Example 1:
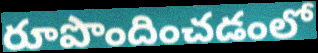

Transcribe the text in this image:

రూపొందించడంలో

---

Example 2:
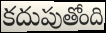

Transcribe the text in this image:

కదుపుతోంది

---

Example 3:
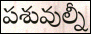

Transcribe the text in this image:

పశువుల్నీ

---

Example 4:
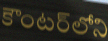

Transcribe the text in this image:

కౌంటర్‌లోని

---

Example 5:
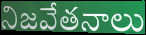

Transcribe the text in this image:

నిజవేతనాలు